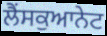
ਲੈਂਸਕੁਆਨੇਟ